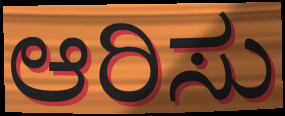
ಆರಿಸು